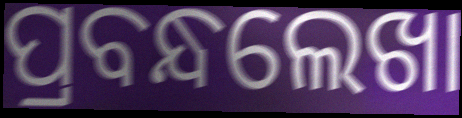
ପ୍ରବନ୍ଧଲେଖା